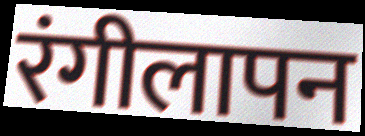
रंगीलापन